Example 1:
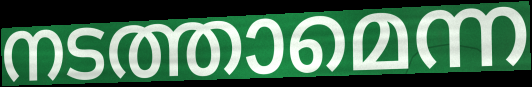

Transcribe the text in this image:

നടത്താമെന്ന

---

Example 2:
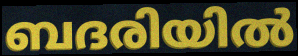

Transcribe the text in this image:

ബദരിയിൽ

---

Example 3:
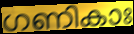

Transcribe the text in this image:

ഗണികാഃ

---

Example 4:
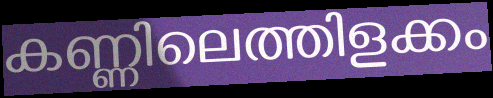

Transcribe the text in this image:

കണ്ണിലെത്തിളക്കം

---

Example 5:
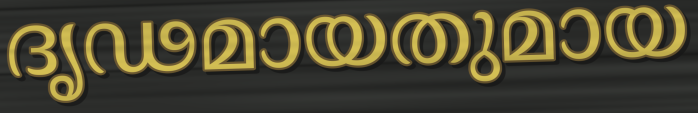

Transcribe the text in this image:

ദൃഢമായതുമായ